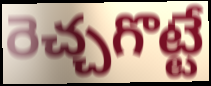
రెచ్చగొట్టే